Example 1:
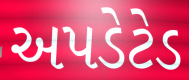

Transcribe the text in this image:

અપડેટેડ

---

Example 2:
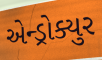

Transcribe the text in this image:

એન્ડ્રોક્યુર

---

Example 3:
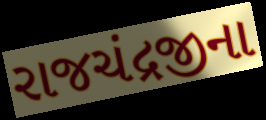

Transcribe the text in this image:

રાજચંદ્રજીના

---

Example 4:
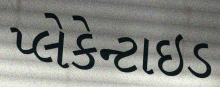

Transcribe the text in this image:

પ્લેકેન્ટાઇડ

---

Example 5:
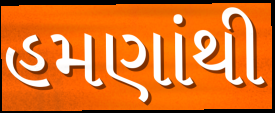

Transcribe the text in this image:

હમણાંથી